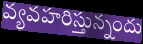
వ్యవహరిస్తున్నందు